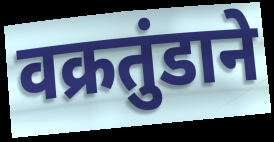
वक्रतुंडाने